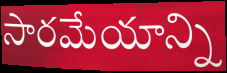
సారమేయాన్ని